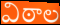
విఠాల